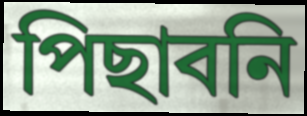
পিছাবনি